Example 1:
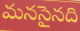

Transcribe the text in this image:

మనసైనది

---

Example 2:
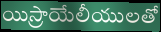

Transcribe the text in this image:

యిస్రాయేలీయులతో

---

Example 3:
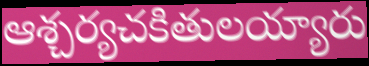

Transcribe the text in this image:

ఆశ్చర్యచకితులయ్యారు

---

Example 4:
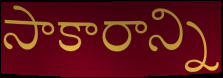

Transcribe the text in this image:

సాకారాన్ని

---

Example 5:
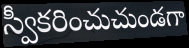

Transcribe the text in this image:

స్వీకరించుచుండగా